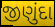
જીણુંદા